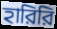
হারিরি